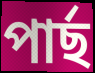
পাৰ্ছ